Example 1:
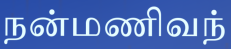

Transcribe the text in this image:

நன்மணிவந்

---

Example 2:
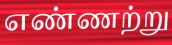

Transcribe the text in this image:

எண்ணற்று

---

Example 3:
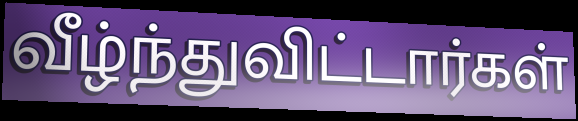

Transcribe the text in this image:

வீழ்ந்துவிட்டார்கள்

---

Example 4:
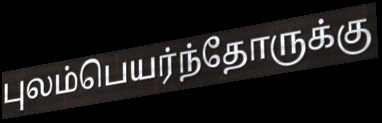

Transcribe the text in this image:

புலம்பெயர்ந்தோருக்கு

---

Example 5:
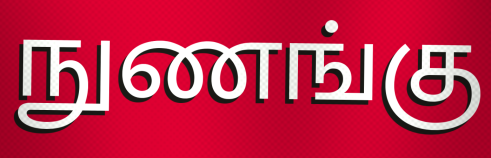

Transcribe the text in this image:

நுணங்கு